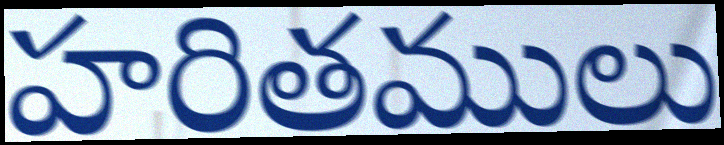
హరితములు